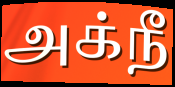
அக்நீ